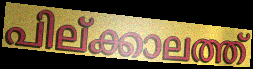
പില്ക്കാലത്ത്